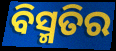
ବିସ୍ମତିର